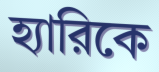
হ্যারিকে